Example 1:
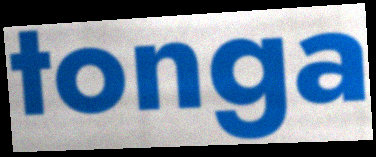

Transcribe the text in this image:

tonga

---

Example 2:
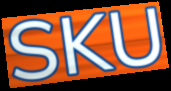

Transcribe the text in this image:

SKU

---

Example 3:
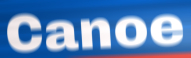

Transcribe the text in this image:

Canoe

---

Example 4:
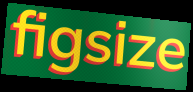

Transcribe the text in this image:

figsize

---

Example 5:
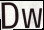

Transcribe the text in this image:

Dw